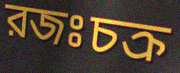
রজঃচক্র